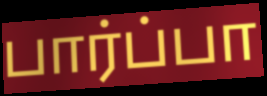
பார்ப்பா